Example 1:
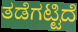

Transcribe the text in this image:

ತಡೆಗಟ್ಟಿದೆ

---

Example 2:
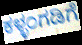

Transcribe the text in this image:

ಕಳ್ಳಂಗಡಿಗೆ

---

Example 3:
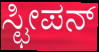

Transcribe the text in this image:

ಸ್ಟೀಪನ್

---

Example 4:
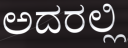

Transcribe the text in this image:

ಅದರಲ್ಲಿ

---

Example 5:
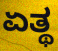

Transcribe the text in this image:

ಏತ್ಥ